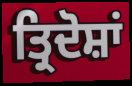
ਤ੍ਰਿਦੋਸ਼ਾਂ